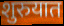
शुरुयात